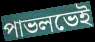
পাভলভেই